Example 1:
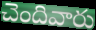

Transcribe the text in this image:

చెందివారు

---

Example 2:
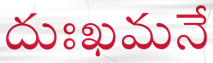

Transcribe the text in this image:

దుఃఖమనే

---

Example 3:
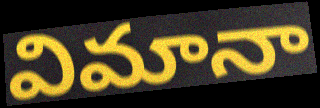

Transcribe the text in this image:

విమానా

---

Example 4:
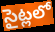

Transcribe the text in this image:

సైట్లలో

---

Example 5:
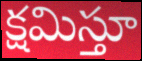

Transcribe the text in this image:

క్షమిస్తూ